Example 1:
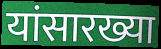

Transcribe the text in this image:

यांसारख्‍या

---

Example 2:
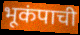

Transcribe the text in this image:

भूकंपाची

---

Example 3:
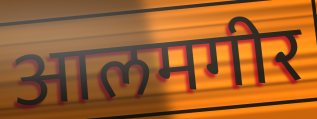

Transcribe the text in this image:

आलमगीर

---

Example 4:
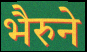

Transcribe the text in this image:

भैरुने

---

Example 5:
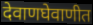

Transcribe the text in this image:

देवाणघेवाणीत